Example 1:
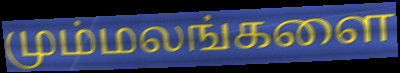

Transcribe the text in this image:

மும்மலங்களை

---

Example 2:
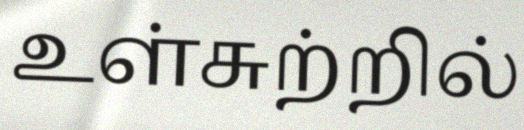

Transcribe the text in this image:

உள்சுற்றில்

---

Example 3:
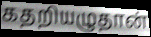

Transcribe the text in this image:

கதறியழுதான்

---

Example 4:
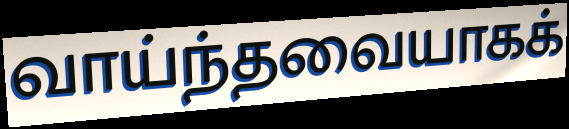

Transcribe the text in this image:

வாய்ந்தவையாகக்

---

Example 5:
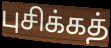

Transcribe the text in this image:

புசிக்கத்